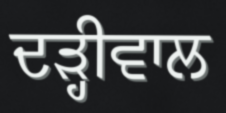
ਦੜ੍ਹੀਵਾਲ